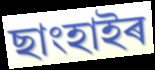
ছাংহাইৰ